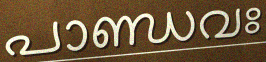
പാണ്ഡവഃ